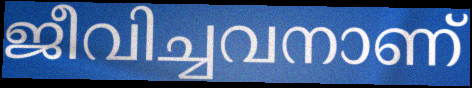
ജീവിച്ചവനാണ്